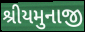
શ્રીયમુનાજી